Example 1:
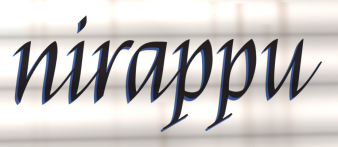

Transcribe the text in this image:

nirappu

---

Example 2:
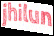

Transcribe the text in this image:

jhilun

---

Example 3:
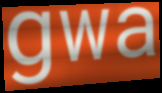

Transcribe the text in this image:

gwa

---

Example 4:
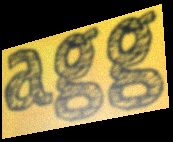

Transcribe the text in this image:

agg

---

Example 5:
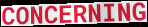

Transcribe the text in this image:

CONCERNING